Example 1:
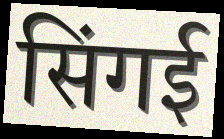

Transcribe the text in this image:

सिंगई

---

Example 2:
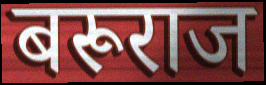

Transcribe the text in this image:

बरूराज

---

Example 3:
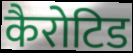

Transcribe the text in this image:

कैरोटिड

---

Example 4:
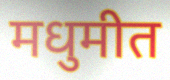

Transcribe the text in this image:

मधुमीत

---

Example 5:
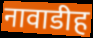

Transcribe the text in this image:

नावाडीह